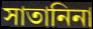
সাতানিনা